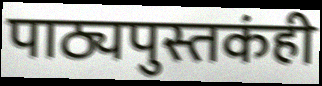
पाठ्यपुस्तकंही